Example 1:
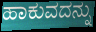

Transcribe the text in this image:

ಹಾಕುವದನ್ನು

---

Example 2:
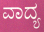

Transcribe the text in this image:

ವಾದ್ಯ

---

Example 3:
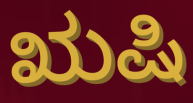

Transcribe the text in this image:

ಋಷಿ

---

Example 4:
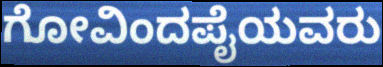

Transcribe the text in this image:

ಗೋವಿಂದಪೈಯವರು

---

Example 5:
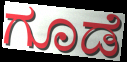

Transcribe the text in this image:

ಗೂಡೆ